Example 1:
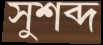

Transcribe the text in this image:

সুশব্দ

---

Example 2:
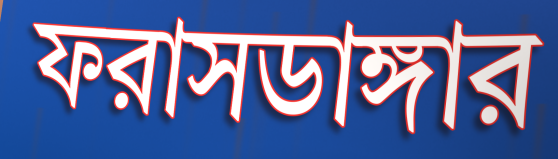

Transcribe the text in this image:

ফরাসডাঙ্গার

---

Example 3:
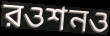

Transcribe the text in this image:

রওশনও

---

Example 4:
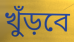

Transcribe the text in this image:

খুঁড়বে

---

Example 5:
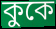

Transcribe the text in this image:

কুকে